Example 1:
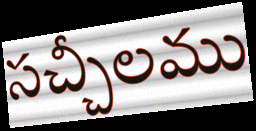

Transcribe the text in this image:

సచ్చీలము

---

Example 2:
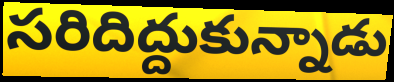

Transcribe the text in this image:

సరిదిద్దుకున్నాడు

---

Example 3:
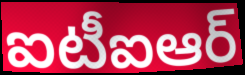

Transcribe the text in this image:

ఐటీఐఆర్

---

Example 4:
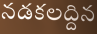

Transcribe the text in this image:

నడకలద్దిన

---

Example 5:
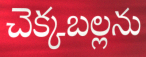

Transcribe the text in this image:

చెక్కబల్లను